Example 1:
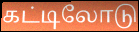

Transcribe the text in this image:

கட்டிலோடு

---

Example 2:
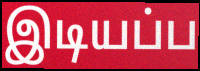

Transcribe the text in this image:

இடியப்ப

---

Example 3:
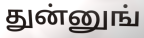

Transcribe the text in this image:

துன்னுங்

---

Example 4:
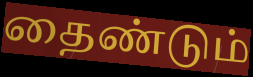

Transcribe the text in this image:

தைண்டும்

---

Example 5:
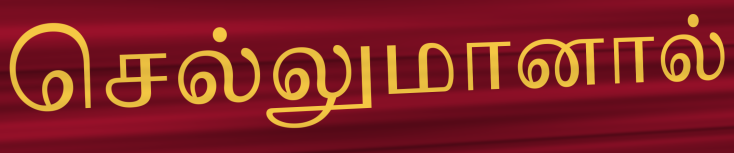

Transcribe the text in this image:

செல்லுமானால்